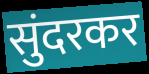
सुंदरकर